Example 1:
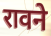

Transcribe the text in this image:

रावने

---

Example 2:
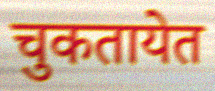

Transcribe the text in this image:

चुकतायेत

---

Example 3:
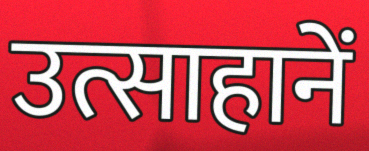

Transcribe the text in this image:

उत्साहानें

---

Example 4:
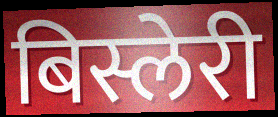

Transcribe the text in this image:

बिस्लेरी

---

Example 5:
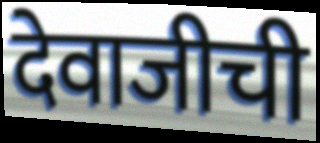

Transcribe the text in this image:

देवाजीची